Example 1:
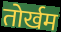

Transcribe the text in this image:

तोर्खम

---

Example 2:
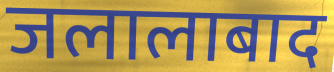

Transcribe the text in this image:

जलालाबाद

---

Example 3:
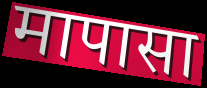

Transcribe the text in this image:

मापासा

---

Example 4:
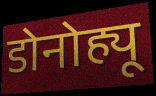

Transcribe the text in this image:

डोनोह्यू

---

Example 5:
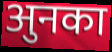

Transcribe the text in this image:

अुनका